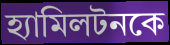
হ্যামিলটনকে